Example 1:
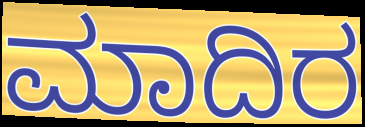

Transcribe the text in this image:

ಮಾದಿರ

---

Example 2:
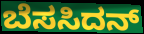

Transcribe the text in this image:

ಬೆಸಸಿದನ್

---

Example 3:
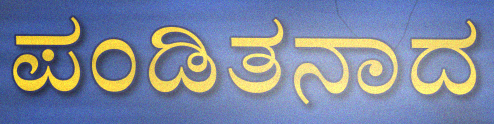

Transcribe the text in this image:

ಪಂಡಿತನಾದ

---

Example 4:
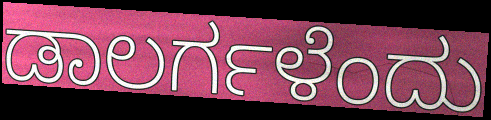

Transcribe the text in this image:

ಡಾಲರ್ಗಳೆಂದು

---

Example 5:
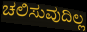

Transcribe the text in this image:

ಚಲಿಸುವುದಿಲ್ಲ